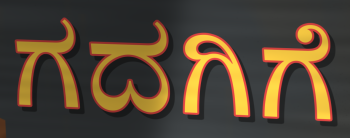
ಗದಗಿಗೆ